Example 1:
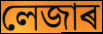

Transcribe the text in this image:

লেজাৰ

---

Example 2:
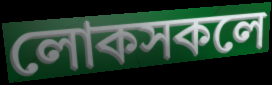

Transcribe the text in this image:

লোকসকলে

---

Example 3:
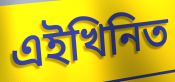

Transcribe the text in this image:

এইখিনিত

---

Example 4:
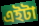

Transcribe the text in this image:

এইটা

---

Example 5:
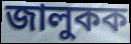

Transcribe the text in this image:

জালুকক